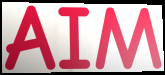
AIM